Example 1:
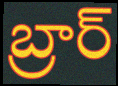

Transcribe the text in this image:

బ్రార్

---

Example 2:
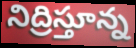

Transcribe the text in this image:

నిద్రిస్తూన్న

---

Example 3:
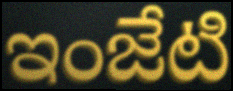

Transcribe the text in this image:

ఇంజేటి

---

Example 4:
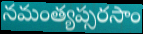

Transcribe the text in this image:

నమంత్యప్సరసాం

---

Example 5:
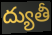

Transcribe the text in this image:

ద్యుతీ